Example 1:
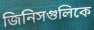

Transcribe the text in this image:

জিনিসগুলিকে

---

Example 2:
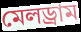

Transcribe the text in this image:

মেলড্রাম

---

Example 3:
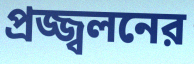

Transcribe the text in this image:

প্রজ্জ্বলনের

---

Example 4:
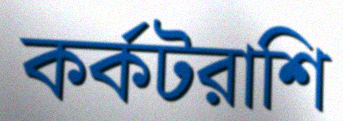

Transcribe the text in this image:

কর্কটরাশি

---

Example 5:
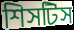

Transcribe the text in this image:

শিসটিস